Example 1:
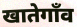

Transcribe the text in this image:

खातेगाँव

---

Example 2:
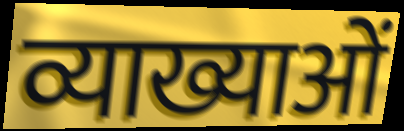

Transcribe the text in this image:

व्याख्याओं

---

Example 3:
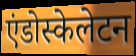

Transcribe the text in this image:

एंडोस्केलेटन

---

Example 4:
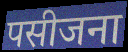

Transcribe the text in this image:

पसीजना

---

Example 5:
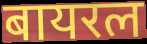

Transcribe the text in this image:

बायरल